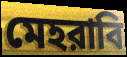
মেহরাবি